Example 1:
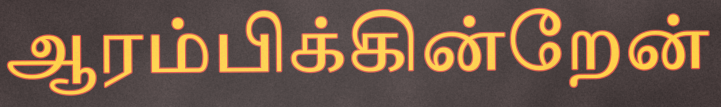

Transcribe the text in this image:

ஆரம்பிக்கின்றேன்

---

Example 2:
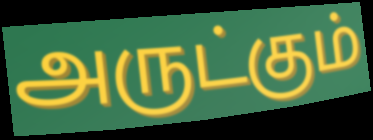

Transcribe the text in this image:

அருட்கும்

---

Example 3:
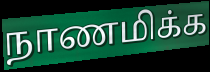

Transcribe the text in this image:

நாணமிக்க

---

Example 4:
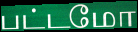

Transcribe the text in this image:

பட்டமோ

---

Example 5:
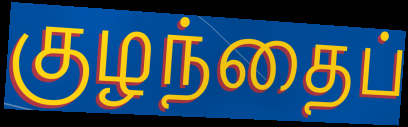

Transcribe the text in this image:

குழந்தைப்